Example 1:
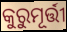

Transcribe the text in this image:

କୁରୁମୂର୍ତ୍ତୀ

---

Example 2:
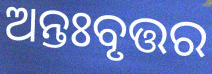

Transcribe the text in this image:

ଅନ୍ତଃବୃତ୍ତର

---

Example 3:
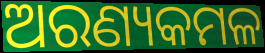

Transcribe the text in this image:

ଅରଣ୍ୟକମଳ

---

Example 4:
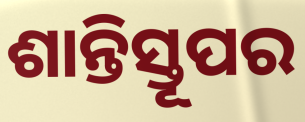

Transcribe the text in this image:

ଶାନ୍ତିସ୍ତୂପର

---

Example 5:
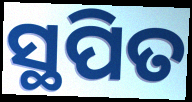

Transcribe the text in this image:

ସ୍ଥପିତ